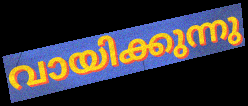
വായിക്കുന്നു